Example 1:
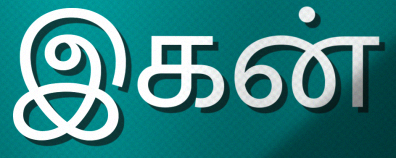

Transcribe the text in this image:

இகன்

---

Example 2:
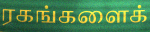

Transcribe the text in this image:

ரகங்களைக்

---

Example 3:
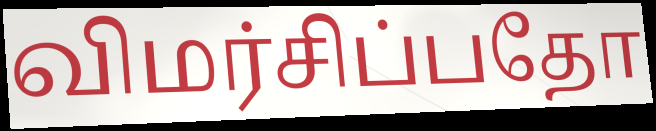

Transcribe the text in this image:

விமர்சிப்பதோ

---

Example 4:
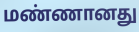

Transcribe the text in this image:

மண்ணானது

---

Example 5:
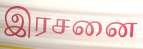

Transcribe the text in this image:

இரசனை